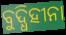
ବୁଦ୍ଧିହୀନା